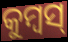
କୁମ୍ବସ୍